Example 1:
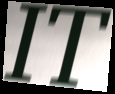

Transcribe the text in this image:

IT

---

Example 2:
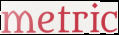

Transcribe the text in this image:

metric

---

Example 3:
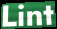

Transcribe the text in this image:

Lint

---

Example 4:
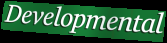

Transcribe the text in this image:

Developmental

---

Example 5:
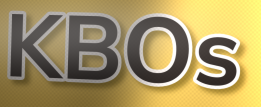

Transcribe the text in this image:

KBOs